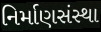
નિર્માણસંસ્થા